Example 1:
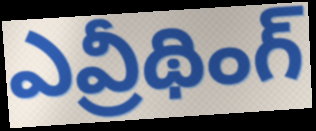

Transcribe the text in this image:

ఎవ్రీథింగ్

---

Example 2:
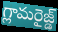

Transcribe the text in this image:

గ్లామరైజ్డ్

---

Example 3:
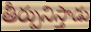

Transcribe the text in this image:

తీర్పునిస్తాడు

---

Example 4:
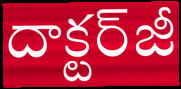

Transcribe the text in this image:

దాక్టర్‌జీ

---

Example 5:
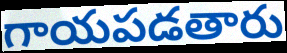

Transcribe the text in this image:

గాయపడతారు